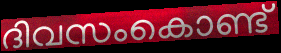
ദിവസംകൊണ്ട്